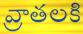
వ్రాతలకి